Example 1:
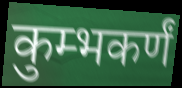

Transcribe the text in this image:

कुम्भकर्णं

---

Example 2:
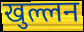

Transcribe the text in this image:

खुल्लन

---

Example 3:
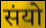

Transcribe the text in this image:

संयो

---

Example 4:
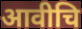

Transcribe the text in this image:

आवीचि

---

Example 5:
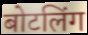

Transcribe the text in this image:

बोटलिंग